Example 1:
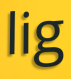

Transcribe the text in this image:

lig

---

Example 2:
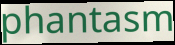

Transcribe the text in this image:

phantasm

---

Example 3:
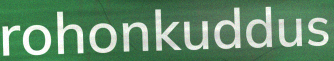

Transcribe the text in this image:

rohonkuddus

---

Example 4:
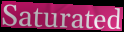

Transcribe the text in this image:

Saturated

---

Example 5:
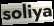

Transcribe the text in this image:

soliya